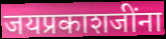
जयप्रकाशजींना